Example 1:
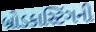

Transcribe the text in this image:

બ્રોડકાસ્ટિંગની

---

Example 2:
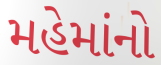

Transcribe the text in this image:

મહેમાંનો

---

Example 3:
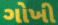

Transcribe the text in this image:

ગોખી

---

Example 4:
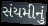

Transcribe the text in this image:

સંયમીનું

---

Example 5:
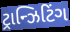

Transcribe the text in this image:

ટ્રાન્ઝિટિંગ